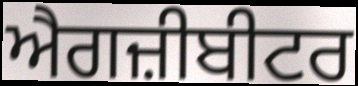
ਐਗਜ਼ੀਬੀਟਰ